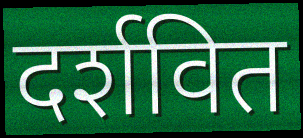
दर्शवित